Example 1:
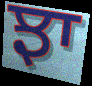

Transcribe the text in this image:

ਝਾ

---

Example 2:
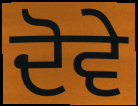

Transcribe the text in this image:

ਦੋਵੇ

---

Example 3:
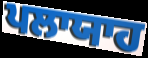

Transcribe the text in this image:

ਪਲਾਯਾਹ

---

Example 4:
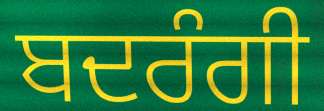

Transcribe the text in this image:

ਬਦਰੰਗੀ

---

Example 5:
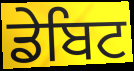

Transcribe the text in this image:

ਡੇਬਿਟ